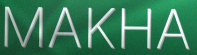
MAKHA